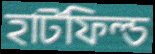
হার্টফিল্ড